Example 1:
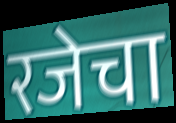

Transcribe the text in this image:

रजेचा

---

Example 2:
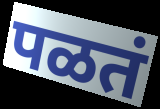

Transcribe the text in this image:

पळतं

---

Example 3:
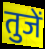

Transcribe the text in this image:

तुजें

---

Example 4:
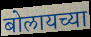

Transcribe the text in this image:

बोलायच्या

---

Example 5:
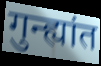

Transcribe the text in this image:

गुन्ह्यांत